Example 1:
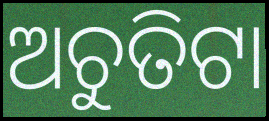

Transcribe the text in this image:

ଅଚୁତିଟା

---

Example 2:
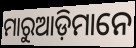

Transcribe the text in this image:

ମାରୁଆଡ଼ିମାନେ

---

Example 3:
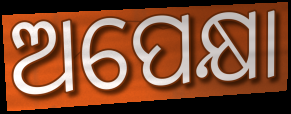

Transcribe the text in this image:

ଅପେକ୍ଷା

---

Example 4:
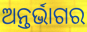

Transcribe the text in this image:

ଅନ୍ତର୍ଭାଗର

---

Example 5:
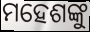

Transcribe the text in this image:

ମହେଶଙ୍କୁ